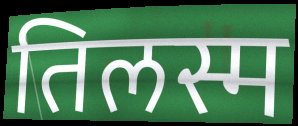
तिलस्म